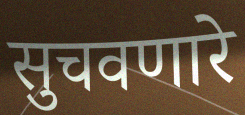
सुचवणारे